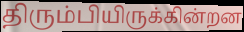
திரும்பியிருக்கின்றன